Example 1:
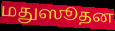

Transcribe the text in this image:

மதுஸூதன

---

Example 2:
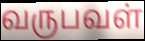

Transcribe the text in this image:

வருபவள்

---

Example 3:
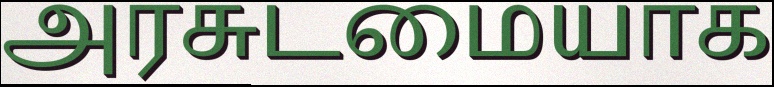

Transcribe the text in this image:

அரசுடமையாக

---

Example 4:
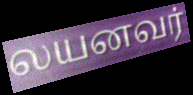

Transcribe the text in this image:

லயனவர்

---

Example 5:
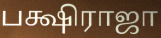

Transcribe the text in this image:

பக்ஷிராஜா